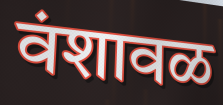
वंशावळ